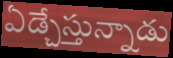
ఏడ్చేస్తున్నాడు